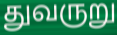
துவருறு